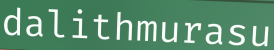
dalithmurasu